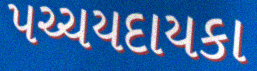
પચ્ચયદાયકા